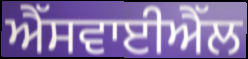
ਐੱਸਵਾਈਐੱਲ